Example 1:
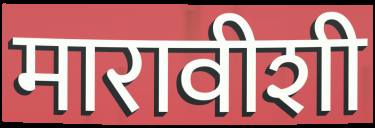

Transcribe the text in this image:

मारावीशी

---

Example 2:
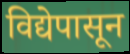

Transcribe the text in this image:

विद्येपासून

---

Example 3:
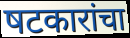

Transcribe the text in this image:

षटकारांचा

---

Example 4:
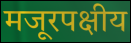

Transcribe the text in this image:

मजूरपक्षीय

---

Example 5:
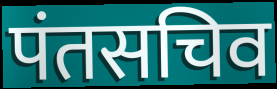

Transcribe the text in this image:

पंतसचिव